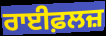
ਰਾਈਫ਼ਲਜ਼